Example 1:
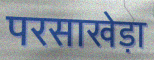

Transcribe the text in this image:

परसाखेड़ा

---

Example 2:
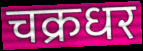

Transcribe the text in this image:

चक्रधर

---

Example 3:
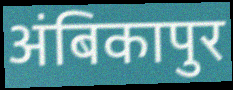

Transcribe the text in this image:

अंबिकापुर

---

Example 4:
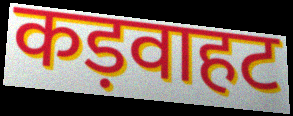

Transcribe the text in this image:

कड़वाहट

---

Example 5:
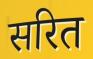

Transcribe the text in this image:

सरित